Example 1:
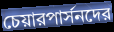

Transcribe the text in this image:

চেয়ারপার্সনদের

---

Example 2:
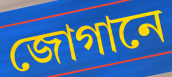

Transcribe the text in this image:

জোগানে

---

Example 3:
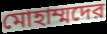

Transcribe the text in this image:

মোহাম্মদের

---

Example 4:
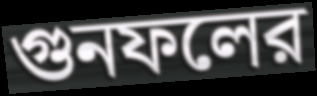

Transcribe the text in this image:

গুনফলের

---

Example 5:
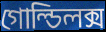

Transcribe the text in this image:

গোল্ডিলক্স